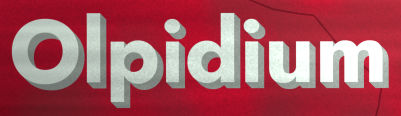
Olpidium